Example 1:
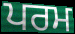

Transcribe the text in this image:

ਪਰਮ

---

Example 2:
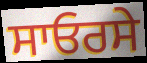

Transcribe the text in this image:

ਸਾਓਰਸੇ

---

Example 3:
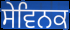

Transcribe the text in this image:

ਸੇਵਿਨਕ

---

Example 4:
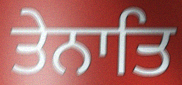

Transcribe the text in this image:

ਤੇਨਾਤਿ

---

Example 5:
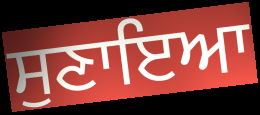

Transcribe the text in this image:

ਸੁਣਾਇਆ